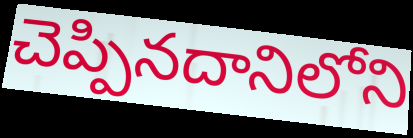
చెప్పినదానిలోని